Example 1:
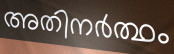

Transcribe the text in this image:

അതിനർത്ഥം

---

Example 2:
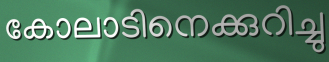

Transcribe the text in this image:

കോലാടിനെക്കുറിച്ചു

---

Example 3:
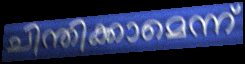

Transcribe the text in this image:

ചിന്തിക്കാമെന്ന്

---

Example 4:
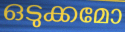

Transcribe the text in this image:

ഒടുക്കമോ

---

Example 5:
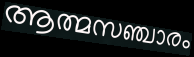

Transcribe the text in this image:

ആത്മസഞ്ചാരം